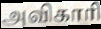
அவிகாரி